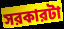
সরকারটা